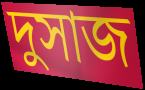
দুসাজ